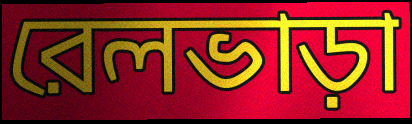
রেলভাড়া